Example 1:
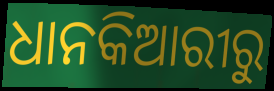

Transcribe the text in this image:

ଧାନକିଆରୀରୁ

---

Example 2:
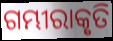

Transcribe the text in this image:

ଗମ୍ଭୀରାକୃତି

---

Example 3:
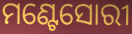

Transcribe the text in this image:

ମଣ୍ଟେସୋରୀ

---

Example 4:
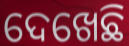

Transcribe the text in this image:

ଦେଖେଛି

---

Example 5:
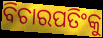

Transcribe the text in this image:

ବିଚାରପତିଂକୁ